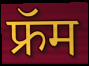
फ्रॅम